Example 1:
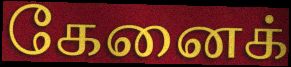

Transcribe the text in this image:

கேனைக்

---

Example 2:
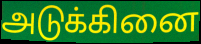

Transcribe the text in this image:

அடுக்கினை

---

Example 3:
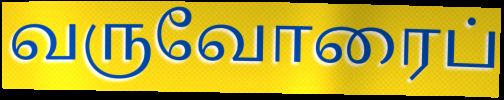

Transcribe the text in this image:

வருவோரைப்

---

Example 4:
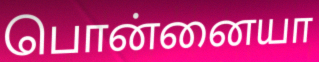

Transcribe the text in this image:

பொன்னையா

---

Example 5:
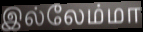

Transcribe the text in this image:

இல்லேம்மா